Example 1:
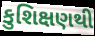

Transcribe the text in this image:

કુશિક્ષણથી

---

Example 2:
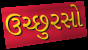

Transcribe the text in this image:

ઉચ્છુરસો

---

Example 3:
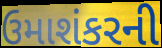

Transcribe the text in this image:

ઉમાશંકરની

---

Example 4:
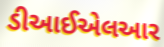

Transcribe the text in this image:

ડીઆઈએલઆર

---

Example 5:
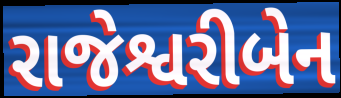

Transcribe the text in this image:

રાજેશ્વરીબેન